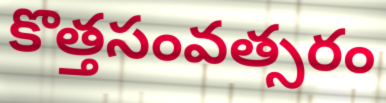
కొత్తసంవత్సరం